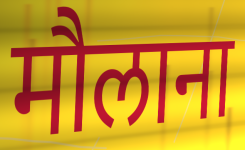
मौलाना